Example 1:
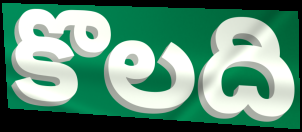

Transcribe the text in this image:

కొలది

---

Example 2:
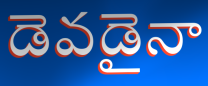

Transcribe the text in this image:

డెవడైనా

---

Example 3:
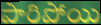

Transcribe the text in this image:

పారిపోయి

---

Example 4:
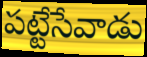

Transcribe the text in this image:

పట్టేసేవాడు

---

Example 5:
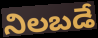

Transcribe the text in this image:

నిలబడే